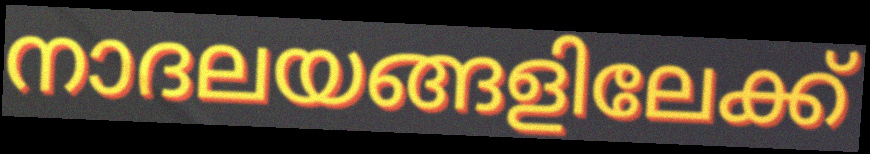
നാദലയങ്ങളിലേക്ക്